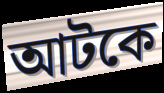
আটকে